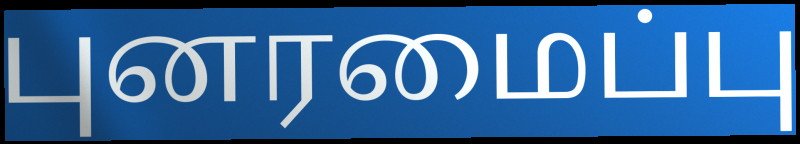
புனரமைப்பு